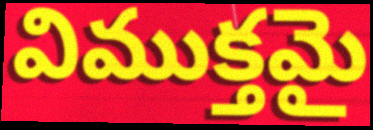
విముక్తమై